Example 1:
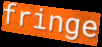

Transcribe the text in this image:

fringe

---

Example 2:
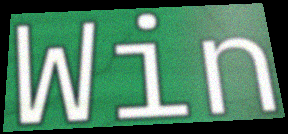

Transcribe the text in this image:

Win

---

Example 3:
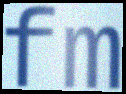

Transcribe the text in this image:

fm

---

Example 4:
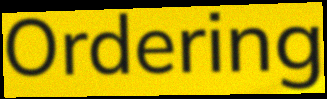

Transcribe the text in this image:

Ordering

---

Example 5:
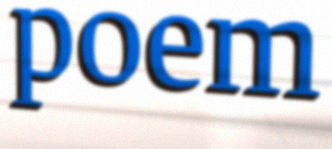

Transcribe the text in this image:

poem